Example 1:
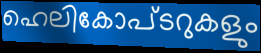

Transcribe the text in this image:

ഹെലികോപ്ടറുകളും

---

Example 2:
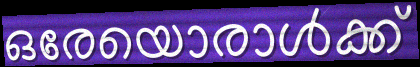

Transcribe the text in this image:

ഒരേയൊരാൾക്ക്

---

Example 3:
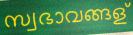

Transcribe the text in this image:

സ്വഭാവങ്ങള്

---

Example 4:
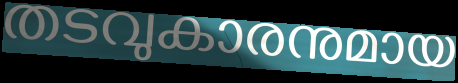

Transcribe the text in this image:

തടവുകാരനുമായ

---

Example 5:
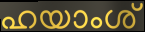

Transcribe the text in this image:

ഹയാംശ്